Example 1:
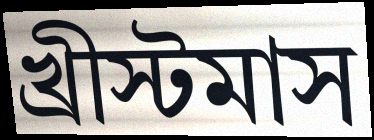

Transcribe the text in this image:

খ্রীস্টমাস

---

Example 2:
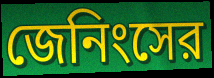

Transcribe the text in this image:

জেনিংসের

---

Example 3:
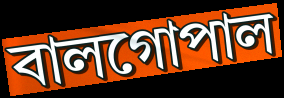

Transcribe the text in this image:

বালগোপাল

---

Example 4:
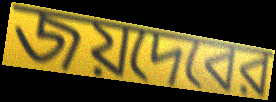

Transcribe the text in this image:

জয়দেবের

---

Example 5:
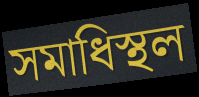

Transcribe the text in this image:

সমাধিস্থল